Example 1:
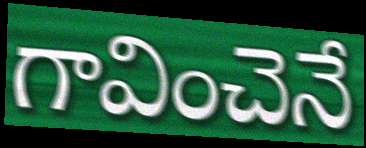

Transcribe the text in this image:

గావించెనే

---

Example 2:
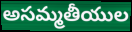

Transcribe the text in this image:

అసమ్మతీయుల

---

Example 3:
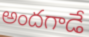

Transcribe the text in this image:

అందగాడే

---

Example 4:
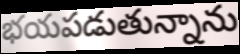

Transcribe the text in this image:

భయపడుతున్నాను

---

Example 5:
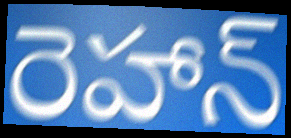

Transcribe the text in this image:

రెహాన్